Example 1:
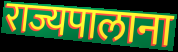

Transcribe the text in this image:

राज्यपालाना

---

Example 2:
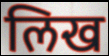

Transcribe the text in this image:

लिख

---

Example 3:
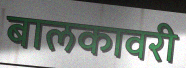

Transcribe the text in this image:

बालकावरी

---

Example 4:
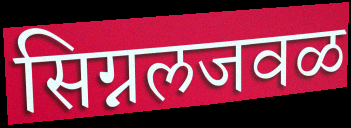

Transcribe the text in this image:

सिग्नलजवळ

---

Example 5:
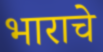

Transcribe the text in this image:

भाराचे